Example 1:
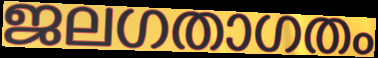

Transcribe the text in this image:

ജലഗതാഗതം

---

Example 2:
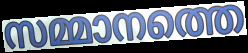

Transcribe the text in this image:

സമ്മാനത്തെ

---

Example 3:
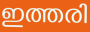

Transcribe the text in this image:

ഇത്തരി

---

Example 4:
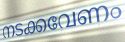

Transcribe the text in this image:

നടക്കവേണം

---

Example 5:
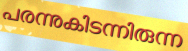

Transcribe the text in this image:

പരന്നുകിടന്നിരുന്ന